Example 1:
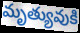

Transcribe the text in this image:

మృత్యువుకి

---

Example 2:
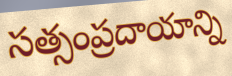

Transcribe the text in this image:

సత్సంప్రదాయాన్ని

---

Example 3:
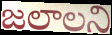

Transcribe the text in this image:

జలాలని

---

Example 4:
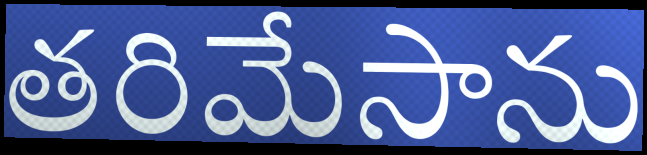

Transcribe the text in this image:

తరిమేసాను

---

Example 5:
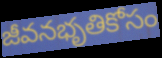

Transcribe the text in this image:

జీవనభృతికోసం